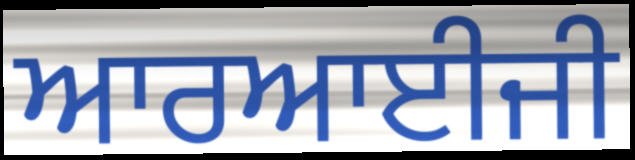
ਆਰਆਈਜੀ